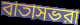
বাতাসভরা